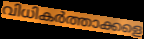
വിധികർത്താക്കളെ